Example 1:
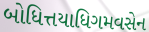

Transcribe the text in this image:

બોધિત્તયાધિગમવસેન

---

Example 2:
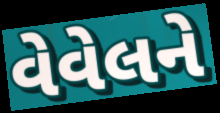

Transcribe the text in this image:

વેવેલને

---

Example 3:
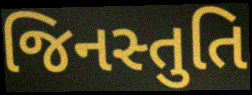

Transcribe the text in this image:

જિનસ્તુતિ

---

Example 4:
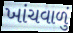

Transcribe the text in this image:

ખાંચવાળું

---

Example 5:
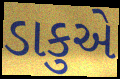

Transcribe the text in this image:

ડાકુએ